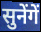
सुनेंगें